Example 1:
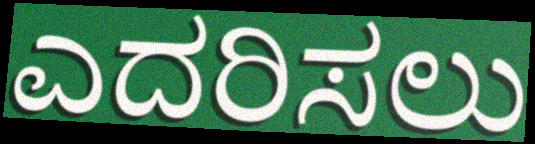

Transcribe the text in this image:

ಎದರಿಸಲು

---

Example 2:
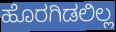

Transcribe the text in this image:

ಹೊರಗಿಡಲಿಲ್ಲ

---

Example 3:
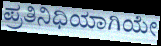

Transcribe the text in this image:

ಪ್ರತಿನಿಧಿಯಾಗಿಯೇ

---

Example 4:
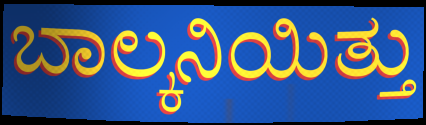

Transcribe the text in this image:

ಬಾಲ್ಕನಿಯಿತ್ತು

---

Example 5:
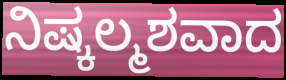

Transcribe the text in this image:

ನಿಷ್ಕಲ್ಮಶವಾದ